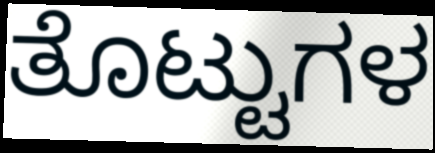
ತೊಟ್ಟುಗಳ